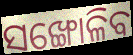
ସଙ୍ଖୋଳିବ